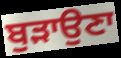
ਬੁੜਾਉਣਾ